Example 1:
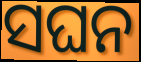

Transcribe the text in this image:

ସଘନ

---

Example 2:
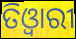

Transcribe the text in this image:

ତିଓ୍ଵାରୀ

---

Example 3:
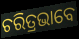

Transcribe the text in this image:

ଚରିତ୍ରଭାବେ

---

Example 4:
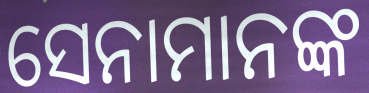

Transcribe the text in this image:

ସେନାମାନଙ୍କ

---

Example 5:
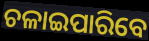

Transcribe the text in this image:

ଚଳାଇପାରିବେ